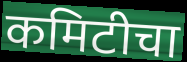
कमिटीचा